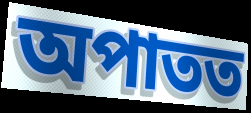
অপাতত